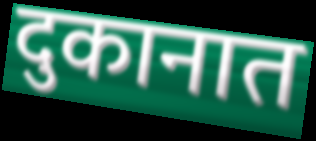
दुकानात